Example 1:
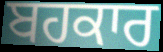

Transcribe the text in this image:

ਬਹਕਾਰ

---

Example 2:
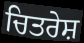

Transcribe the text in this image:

ਚਿਤਰੇਸ਼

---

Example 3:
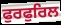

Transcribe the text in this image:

ਫੁਰਫੁਰਿਲ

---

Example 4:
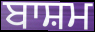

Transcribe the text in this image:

ਬਾਸ਼ਮ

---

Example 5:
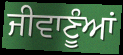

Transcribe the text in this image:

ਜੀਵਾਣੂੰਆਂ